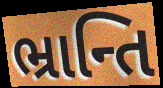
ભ્રાન્તિ